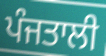
ਪੰਜਤਾਲੀ